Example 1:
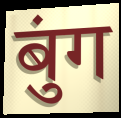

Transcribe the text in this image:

बुंग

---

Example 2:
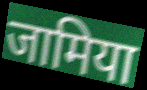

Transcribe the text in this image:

जामिया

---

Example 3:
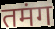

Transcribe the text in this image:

तमंग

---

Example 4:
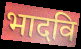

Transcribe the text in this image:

भादवि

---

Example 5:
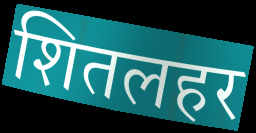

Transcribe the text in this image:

शितलहर